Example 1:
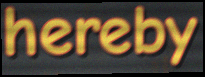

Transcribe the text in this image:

hereby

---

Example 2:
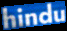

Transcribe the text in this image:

hindu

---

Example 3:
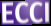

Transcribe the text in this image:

ECCI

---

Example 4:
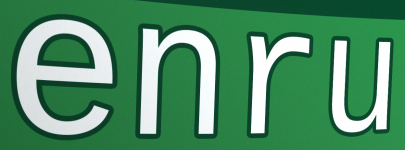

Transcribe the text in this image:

enru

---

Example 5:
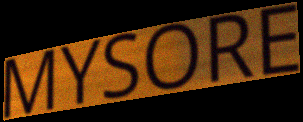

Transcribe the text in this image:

MYSORE